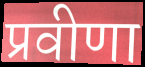
प्रवीणा